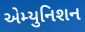
એમ્યુનિશન